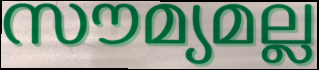
സൗമ്യമല്ല